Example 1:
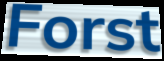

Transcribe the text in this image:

Forst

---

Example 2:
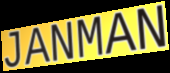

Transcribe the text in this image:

JANMAN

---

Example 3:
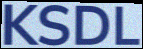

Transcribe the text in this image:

KSDL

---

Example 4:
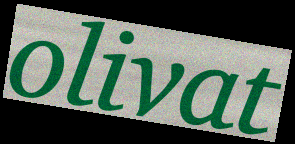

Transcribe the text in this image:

olivat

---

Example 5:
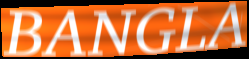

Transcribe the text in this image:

BANGLA